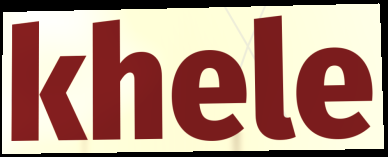
khele